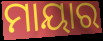
ମାୟାର